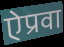
ऐप्रवा